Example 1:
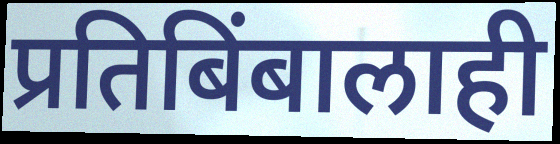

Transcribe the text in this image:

प्रतिबिंबालाही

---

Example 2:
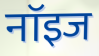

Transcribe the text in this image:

नॉइज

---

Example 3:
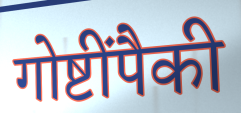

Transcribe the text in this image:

गोष्टींपैकी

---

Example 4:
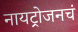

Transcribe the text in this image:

नायट्रोजनचं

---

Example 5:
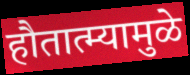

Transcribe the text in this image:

हौतात्म्यामुळे